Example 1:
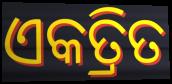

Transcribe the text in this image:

ଏକତ୍ରିତ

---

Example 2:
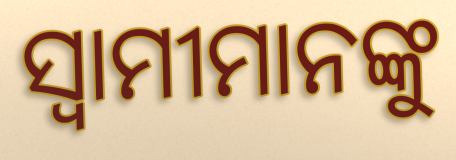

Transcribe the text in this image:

ସ୍ବାମୀମାନଙ୍କୁ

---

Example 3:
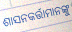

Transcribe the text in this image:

ଶାସନକର୍ତ୍ତାମାନଙ୍କୁ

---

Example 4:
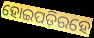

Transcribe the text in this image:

ହୋଇପଡ଼ିରହେ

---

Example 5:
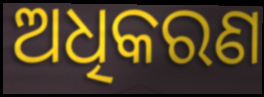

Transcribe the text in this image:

ଅଧିକରଣ